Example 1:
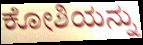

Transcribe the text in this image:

ಕೋಶಿಯನ್ನು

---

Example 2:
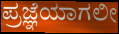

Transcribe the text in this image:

ಪ್ರಜ್ಞೆಯಾಗಲೀ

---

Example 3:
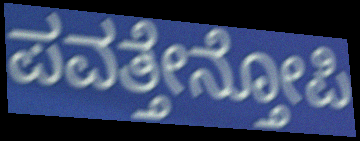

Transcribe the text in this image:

ಪವತ್ತೇನ್ತೋಪಿ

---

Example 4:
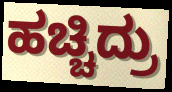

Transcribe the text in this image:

ಹಚ್ಚಿದ್ರು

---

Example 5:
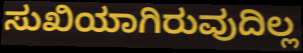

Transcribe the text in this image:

ಸುಖಿಯಾಗಿರುವುದಿಲ್ಲ